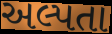
અલ્પતા